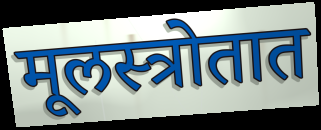
मूलस्त्रोतात